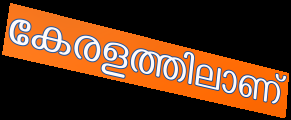
കേരളത്തിലാണ്